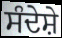
ਸੰਦੇਸ਼ੇ